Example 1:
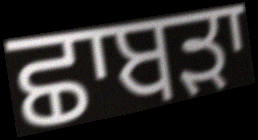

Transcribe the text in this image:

ਛਾਬੜਾ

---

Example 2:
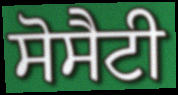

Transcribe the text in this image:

ਸੋਸੈਟੀ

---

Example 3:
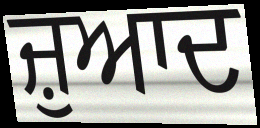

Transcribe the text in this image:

ਜ਼ੁਆਦ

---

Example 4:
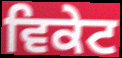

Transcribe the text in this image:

ਵਿਕੇਟ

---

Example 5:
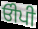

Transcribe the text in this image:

ਓੀਪੀ